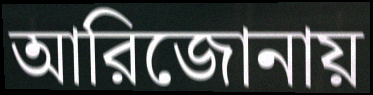
আরিজোনায়